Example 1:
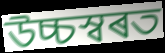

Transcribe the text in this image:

উচ্চস্বৰত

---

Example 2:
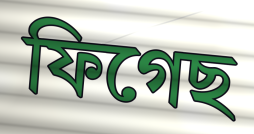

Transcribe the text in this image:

ফিগেছ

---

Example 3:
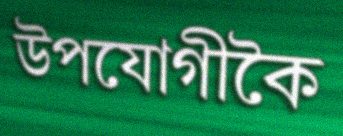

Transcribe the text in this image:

উপযোগীকৈ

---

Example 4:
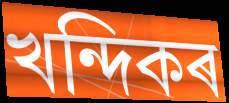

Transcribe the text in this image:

খন্দিকৰ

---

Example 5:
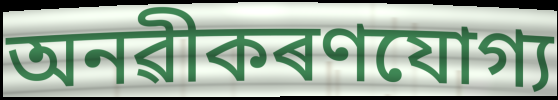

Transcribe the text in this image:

অনৱীকৰণযোগ্য